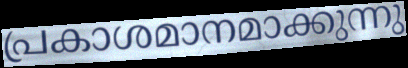
പ്രകാശമാനമാക്കുന്നു